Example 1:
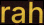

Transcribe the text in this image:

rah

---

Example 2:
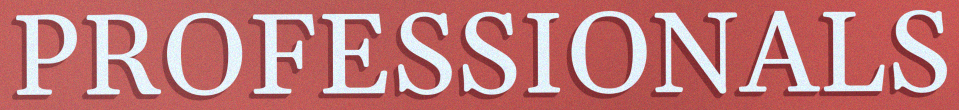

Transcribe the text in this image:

PROFESSIONALS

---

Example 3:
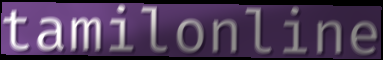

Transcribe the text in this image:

tamilonline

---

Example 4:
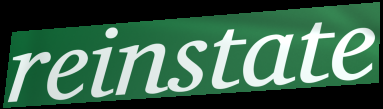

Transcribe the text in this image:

reinstate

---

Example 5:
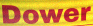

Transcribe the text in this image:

Dower